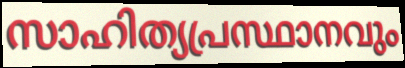
സാഹിത്യപ്രസ്ഥാനവും